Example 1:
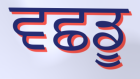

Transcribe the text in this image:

ਵਛਡੂ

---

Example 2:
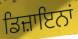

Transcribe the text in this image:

ਡਿਜ਼ਾਇਨਾਂ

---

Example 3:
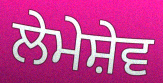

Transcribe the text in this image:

ਲੇਮੇਸ਼ੇਵ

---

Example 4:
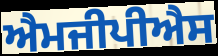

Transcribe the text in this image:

ਐਮਜੀਪੀਐਸ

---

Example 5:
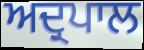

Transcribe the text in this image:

ਅਦ੍ਰਪਾਲ